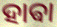
ହାଵା